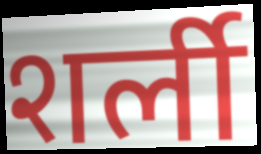
शर्ली